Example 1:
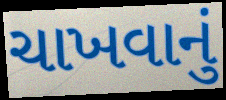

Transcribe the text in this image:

ચાખવાનું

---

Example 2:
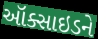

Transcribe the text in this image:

ઑક્સાઇડને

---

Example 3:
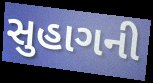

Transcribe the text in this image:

સુહાગની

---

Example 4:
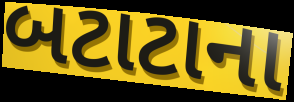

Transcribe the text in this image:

બટાટાના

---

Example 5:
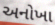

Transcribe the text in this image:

અનોખા